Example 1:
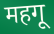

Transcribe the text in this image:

महगू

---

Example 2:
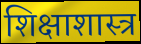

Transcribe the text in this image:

शिक्षाशास्त्र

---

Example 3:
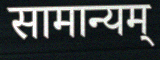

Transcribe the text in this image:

सामान्यम्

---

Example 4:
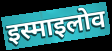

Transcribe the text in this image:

इस्माइलोव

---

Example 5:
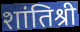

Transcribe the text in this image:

शांतिश्री